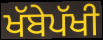
ਖੱਬੇਪੱਖੀ